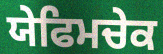
ਯੇਫਿਮਚੇਕ